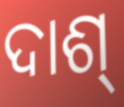
ଦାଶ୍